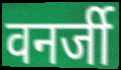
वनर्जी